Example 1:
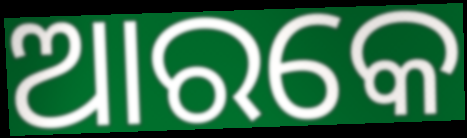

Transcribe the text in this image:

ଆରକେ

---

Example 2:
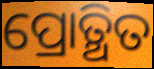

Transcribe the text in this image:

ପ୍ରୋତ୍ଥିତ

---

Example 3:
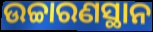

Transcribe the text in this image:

ଉଚ୍ଚାରଣସ୍ଥାନ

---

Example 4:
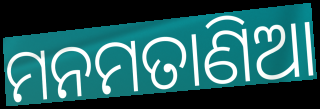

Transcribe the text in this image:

ମନମତାଣିଆ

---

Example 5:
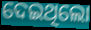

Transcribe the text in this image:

ଦେଇଥିଲୋ